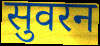
सुवरन